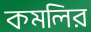
কমলির